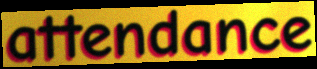
attendance